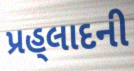
પ્રહ્‌લાદની